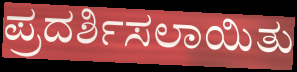
ಪ್ರದರ್ಶಿಸಲಾಯಿತು